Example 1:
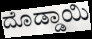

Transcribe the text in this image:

ದೊಡ್ಡಾಯಿ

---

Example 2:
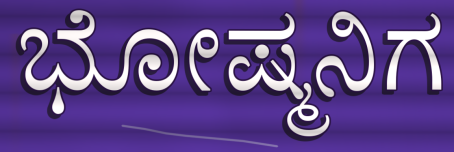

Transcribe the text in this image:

ಭೋಷ್ಮನಿಗ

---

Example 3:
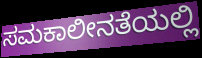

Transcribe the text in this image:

ಸಮಕಾಲೀನತೆಯಲ್ಲಿ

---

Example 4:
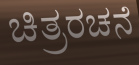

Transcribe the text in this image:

ಚಿತ್ರರಚನೆ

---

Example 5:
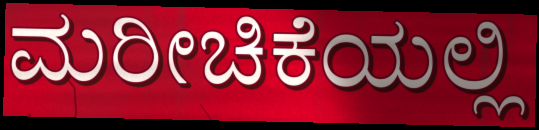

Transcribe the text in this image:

ಮರೀಚಿಕೆಯಲ್ಲಿ